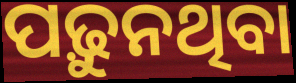
ପଢ଼ୁନଥିବା